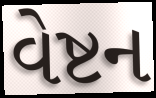
વેષ્ટન